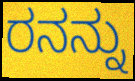
ರನನ್ನು